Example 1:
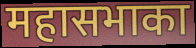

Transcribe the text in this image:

महासभाका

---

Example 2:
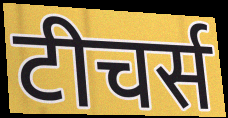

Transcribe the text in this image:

टीचर्स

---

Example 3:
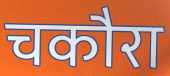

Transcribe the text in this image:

चकौरा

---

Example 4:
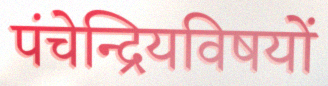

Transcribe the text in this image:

पंचेन्द्रियविषयों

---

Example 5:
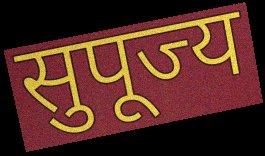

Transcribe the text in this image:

सुपूज्य